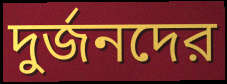
দুর্জনদের